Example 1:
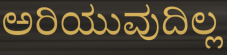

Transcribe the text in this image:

ಅರಿಯುವುದಿಲ್ಲ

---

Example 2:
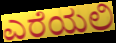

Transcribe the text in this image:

ಎರೆಯಲಿ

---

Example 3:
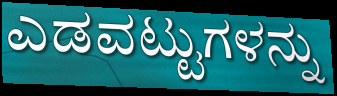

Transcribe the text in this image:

ಎಡವಟ್ಟುಗಳನ್ನು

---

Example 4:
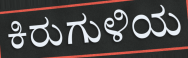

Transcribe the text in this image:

ಕಿರುಗುಳಿಯ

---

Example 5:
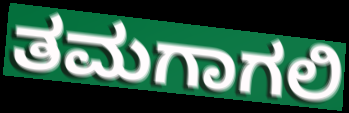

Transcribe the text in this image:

ತಮಗಾಗಲಿ